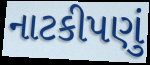
નાટકીપણું